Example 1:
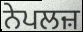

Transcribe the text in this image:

ਨੇਪਲਜ਼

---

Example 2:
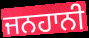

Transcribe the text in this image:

ਜਨਹਾਨੀ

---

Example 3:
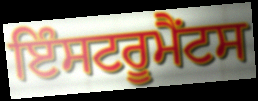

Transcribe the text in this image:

ਇੰਸਟਰੂਮੈਂਟਸ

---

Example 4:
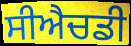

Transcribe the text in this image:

ਸੀਐਚਡੀ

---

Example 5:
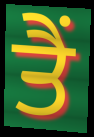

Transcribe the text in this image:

ਤੈਂ